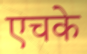
एचके